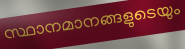
സ്ഥാനമാനങ്ങളുടെയും